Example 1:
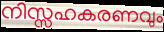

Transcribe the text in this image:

നിസ്സഹകരണവും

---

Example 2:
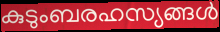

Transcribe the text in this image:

കുടുംബരഹസ്യങ്ങൾ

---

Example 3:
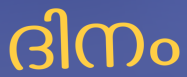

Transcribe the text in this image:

ദിനം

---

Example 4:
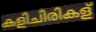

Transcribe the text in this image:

കളിചിരികള്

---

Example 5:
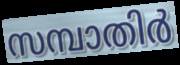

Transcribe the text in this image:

സമ്പാതിർ